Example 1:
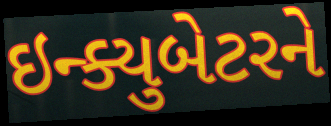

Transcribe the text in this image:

ઇન્ક્યુબેટરને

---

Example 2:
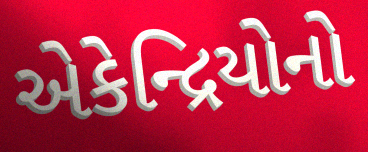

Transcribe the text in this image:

એકેન્દ્રિયોનો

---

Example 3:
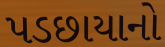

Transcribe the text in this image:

પડછાયાનો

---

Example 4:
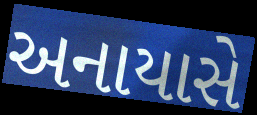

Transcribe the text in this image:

અનાયાસે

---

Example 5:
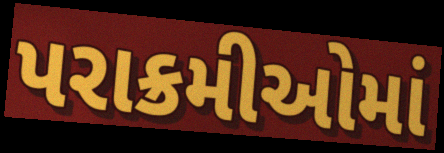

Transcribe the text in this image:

પરાક્રમીઓમાં